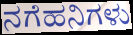
ನಗೆಹನಿಗಳು